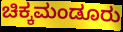
ಚಿಕ್ಕಮಂಡೂರು